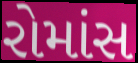
રોમાંસ